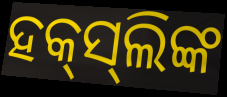
ହକ୍‌ସ୍‌ଲିଙ୍କ